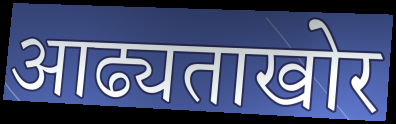
आढ्यताखोर